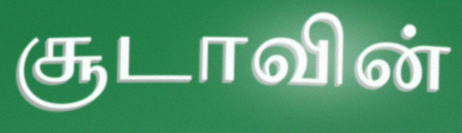
சூடாவின்